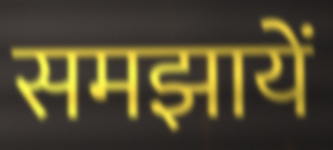
समझायें